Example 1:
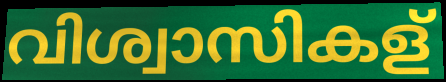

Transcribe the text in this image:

വിശ്വാസികള്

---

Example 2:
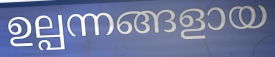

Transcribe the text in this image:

ഉല്പന്നങ്ങളായ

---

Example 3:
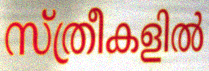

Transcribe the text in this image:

സ്ത്രീകളിൽ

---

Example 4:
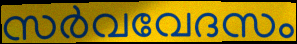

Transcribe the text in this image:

സർവവേദസം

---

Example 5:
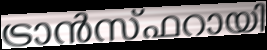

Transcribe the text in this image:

ട്രാൻസ്ഫറായി